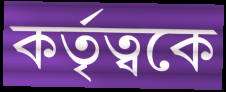
কর্তৃত্বকে